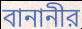
বানানীর